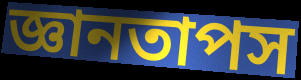
জ্ঞানতাপস